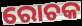
ରୋଚକ